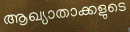
ആഖ്യാതാക്കളുടെ